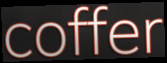
coffer